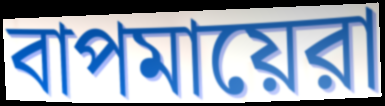
বাপমায়েরা